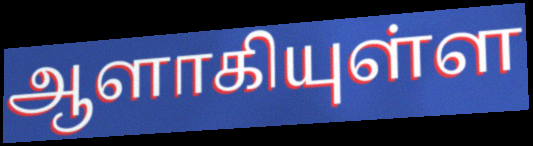
ஆளாகியுள்ள